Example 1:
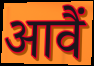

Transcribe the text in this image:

आवैं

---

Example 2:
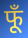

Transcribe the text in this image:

फूँ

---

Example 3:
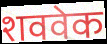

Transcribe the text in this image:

शववेक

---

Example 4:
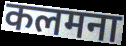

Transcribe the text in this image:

कलमना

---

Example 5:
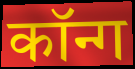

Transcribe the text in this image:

कॉन्ग